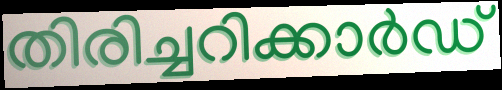
തിരിച്ചറിക്കാർഡ്